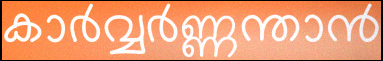
കാർവ്വർണ്ണന്താൻ